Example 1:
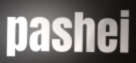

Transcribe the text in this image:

pashei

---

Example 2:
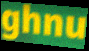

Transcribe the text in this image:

ghnu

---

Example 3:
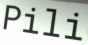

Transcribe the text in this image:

Pili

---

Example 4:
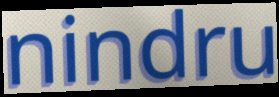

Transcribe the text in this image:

nindru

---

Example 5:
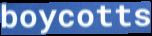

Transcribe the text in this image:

boycotts